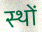
स्थों